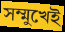
সম্মুখেই